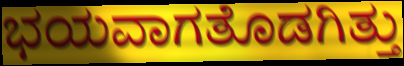
ಭಯವಾಗತೊಡಗಿತ್ತು